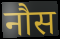
नौस